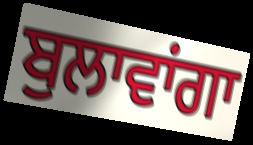
ਬੁਲਾਵਾਂਗਾ